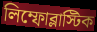
লিম্ফোব্লাস্টিক